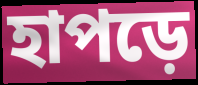
হাপড়ে